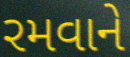
રમવાને